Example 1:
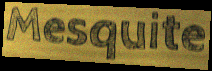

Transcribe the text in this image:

Mesquite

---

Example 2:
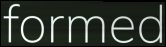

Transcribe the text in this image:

formed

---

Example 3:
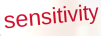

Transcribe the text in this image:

sensitivity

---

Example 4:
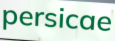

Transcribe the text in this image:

persicae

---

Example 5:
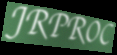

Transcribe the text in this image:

JRPROC